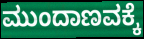
ಮುಂದಾಣವಕ್ಕೆ